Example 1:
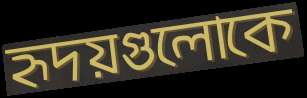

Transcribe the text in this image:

হৃদয়গুলোকে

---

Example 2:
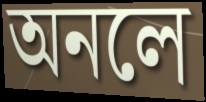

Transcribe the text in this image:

অনলে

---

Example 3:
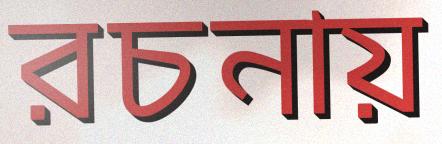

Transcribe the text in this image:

রচনায়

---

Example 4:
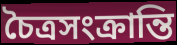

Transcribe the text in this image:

চৈত্রসংক্রান্তি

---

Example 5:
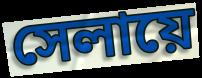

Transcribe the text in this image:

সেলায়ে